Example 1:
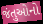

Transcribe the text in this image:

જંતુઓનો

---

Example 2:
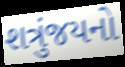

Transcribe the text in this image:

શત્રુંજયનો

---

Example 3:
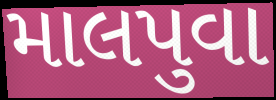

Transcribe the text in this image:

માલપુવા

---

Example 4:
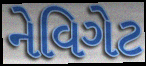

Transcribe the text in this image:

નેવિગેટ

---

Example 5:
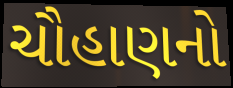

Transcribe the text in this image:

ચૌહાણનો